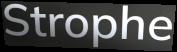
Strophe